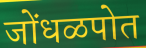
जोंधळपोत